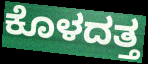
ಕೊಳದತ್ತ